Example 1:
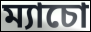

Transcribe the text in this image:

ম্যাচো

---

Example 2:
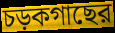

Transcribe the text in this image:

চড়কগাছের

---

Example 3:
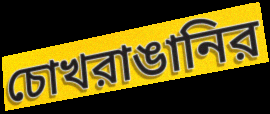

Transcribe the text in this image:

চোখরাঙানির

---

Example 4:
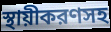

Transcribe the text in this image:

স্থায়ীকরণসহ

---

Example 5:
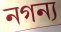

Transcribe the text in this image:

নগন্য